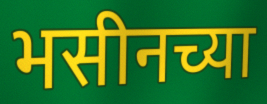
भसीनच्या